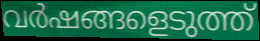
വർഷങ്ങളെടുത്ത്